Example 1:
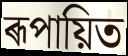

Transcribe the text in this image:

ৰূপায়িত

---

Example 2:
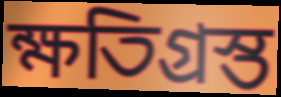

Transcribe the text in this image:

ক্ষতিগ্ৰস্ত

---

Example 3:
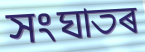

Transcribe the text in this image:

সংঘাতৰ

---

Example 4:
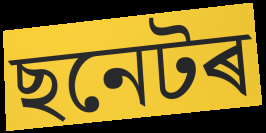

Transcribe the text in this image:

ছনেটৰ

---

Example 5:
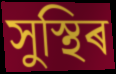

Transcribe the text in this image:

সুস্থিৰ